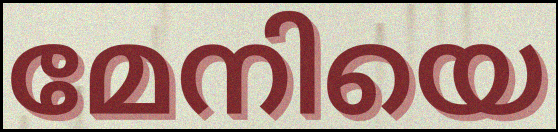
മേനിയെ